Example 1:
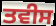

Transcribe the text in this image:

ਤਵੀਸ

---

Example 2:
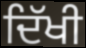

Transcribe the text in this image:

ਦਿੱਖੀ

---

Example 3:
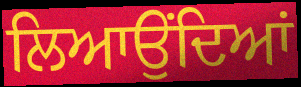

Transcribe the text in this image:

ਲਿਆਉਂਦਿਆਂ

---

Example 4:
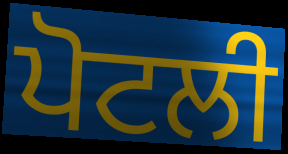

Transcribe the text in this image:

ਪੋਟਲੀ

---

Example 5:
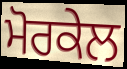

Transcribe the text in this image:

ਮੋਰਕੇਲ